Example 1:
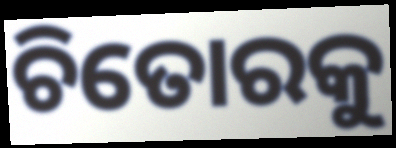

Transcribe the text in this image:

ଚିତୋରକୁ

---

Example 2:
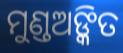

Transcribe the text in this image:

ମୁଣ୍ଡଅଙ୍କିତ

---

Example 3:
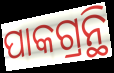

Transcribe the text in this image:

ପାକଗ୍ରନ୍ଥି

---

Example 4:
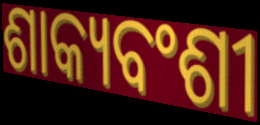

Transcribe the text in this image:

ଶାକ୍ୟବଂଶୀ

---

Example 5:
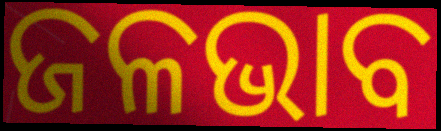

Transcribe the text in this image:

ଜଳଭାବ